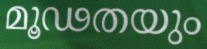
മൂഢതയും